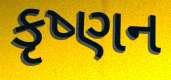
કૃષ્ણન